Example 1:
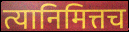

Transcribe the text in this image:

त्यानिमित्तच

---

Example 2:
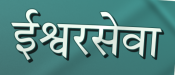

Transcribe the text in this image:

ईश्वरसेवा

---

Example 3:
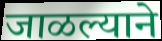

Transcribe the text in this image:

जाळल्याने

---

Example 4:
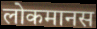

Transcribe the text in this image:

लोकमानस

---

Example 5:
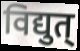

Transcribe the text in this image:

विद्युत्